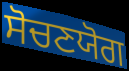
ਸੋਚਣਯੋਗ